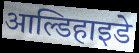
आल्डिहाइडे